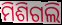
ମିଶିଗଲି